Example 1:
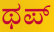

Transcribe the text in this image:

ಥಪ್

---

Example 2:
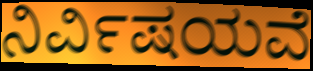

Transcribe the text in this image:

ನಿರ್ವಿಷಯವೆ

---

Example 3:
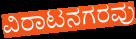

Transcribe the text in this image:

ವಿರಾಟನಗರವು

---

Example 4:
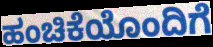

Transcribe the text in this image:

ಹಂಚಿಕೆಯೊಂದಿಗೆ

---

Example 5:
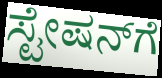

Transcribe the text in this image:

ಸ್ಟೇಷನ್‌ಗೆ